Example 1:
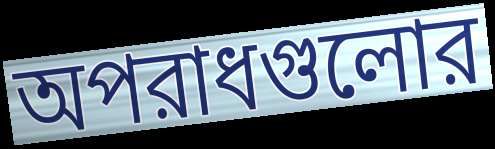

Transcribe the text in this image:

অপরাধগুলোর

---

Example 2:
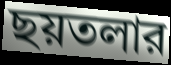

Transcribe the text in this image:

ছয়তলার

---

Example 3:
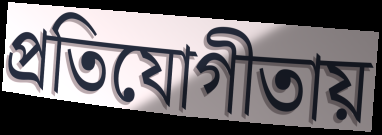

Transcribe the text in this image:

প্রতিযোগীতায়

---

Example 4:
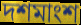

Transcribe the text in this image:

দশমাংশ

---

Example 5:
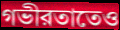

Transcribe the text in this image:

গভীরতাতেও